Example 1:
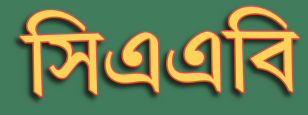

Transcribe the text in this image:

সিএএবি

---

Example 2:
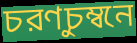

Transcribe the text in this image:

চরণচুম্বনে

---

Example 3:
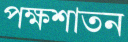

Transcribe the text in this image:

পক্ষশাতন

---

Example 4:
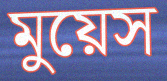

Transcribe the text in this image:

মুয়েস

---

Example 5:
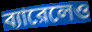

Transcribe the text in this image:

ব্যারেলেও